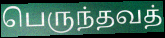
பெருந்தவத்